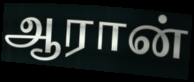
ஆரான்